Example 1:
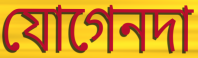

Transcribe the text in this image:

যোগেনদা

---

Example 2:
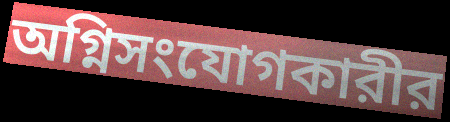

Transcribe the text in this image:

অগ্নিসংযোগকারীর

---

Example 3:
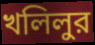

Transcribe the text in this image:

খলিলুর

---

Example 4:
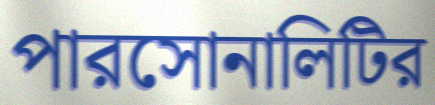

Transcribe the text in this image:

পারসোনালিটির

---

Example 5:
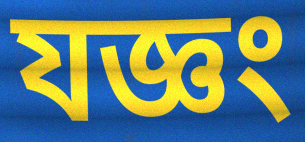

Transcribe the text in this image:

যজ্ঞং